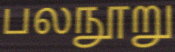
பலநூறு